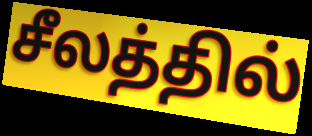
சீலத்தில்